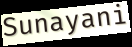
Sunayani